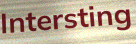
Intersting